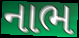
નાભ